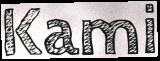
Kami